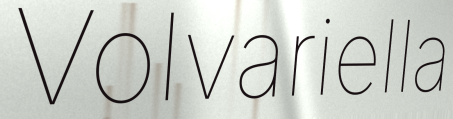
Volvariella